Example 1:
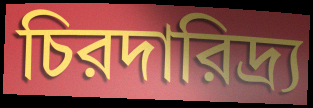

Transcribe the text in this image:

চিরদারিদ্র্য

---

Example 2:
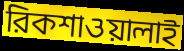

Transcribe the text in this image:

রিকশাওয়ালাই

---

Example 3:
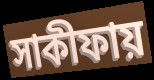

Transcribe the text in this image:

সাকীফায়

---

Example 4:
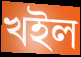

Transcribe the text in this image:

খইল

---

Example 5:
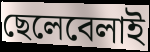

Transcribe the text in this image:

ছেলেবেলাই